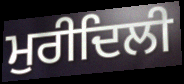
ਮੁਰੀਦਿਲੀ